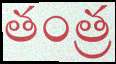
తంత్ర